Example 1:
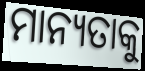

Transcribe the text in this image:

ମାନ୍ୟତାକୁ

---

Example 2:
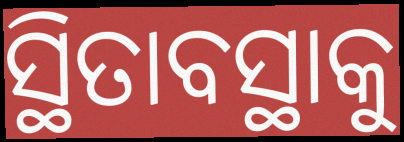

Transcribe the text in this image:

ସ୍ଥିତାବସ୍ଥାକୁ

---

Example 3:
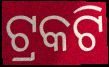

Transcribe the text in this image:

ଟ୍ରକଟି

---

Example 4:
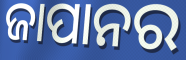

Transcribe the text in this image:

ଜାପାନର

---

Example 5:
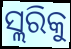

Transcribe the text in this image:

ସ୍ଲରିକୁ